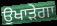
ਉਖਾੜੇਗਾ